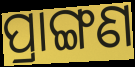
ପ୍ରାଙ୍ଗଣ